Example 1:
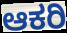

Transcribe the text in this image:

ಆಕರಿ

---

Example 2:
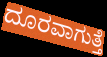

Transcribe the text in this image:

ದೂರವಾಗುತ್ತೆ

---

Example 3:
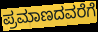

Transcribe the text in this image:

ಪ್ರಮಾಣದವರೆಗೆ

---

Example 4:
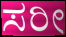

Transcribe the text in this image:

ಸರೀ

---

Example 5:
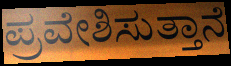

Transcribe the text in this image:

ಪ್ರವೇಶಿಸುತ್ತಾನೆ